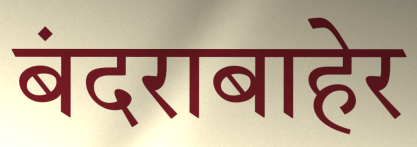
बंदराबाहेर